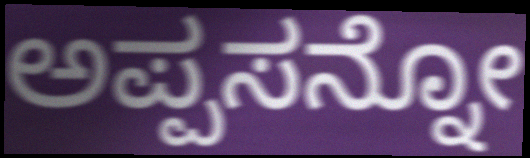
ಅಪ್ಪಸನ್ನೋ